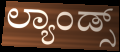
ಲ್ಯಾಂಡ್ಸ್